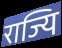
राज्यि